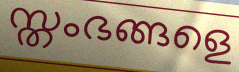
സ്തംഭങ്ങളെ